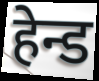
हेन्ड